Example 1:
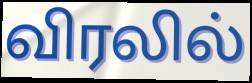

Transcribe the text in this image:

விரலில்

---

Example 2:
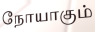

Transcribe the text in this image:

நோயாகும்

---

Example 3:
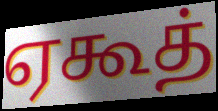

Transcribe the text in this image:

ஏகூத்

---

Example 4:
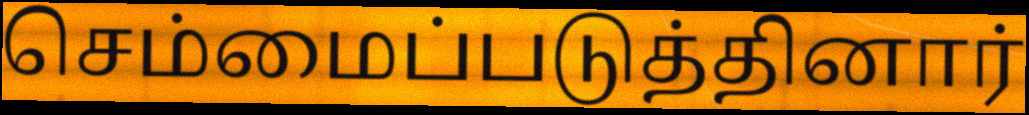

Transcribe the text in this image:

செம்மைப்படுத்தினார்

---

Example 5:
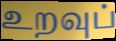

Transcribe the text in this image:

உறவுப்